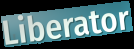
Liberator